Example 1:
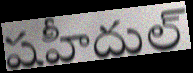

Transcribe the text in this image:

షహీదుల్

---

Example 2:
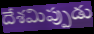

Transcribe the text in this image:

దేశమిప్పుడు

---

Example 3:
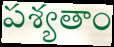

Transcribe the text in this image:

పశ్యతాం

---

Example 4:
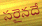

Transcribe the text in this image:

సరైనదే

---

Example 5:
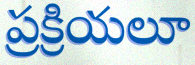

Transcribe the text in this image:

ప్రక్రియలూ